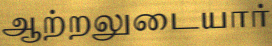
ஆற்றலுடையார்